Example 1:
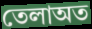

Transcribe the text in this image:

তেলাঅত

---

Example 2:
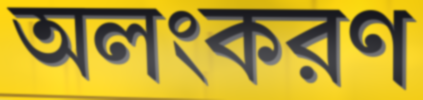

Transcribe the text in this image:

অলংকরণ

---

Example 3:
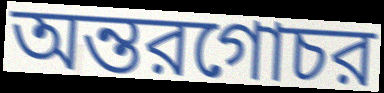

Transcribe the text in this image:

অন্তরগোচর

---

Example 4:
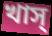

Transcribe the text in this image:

খাস্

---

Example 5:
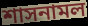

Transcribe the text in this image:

শাসনামল